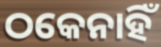
ଠକେନାହିଁ